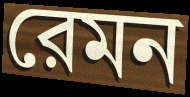
রেমন